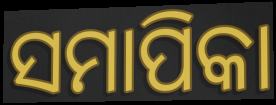
ସମାପିକା